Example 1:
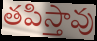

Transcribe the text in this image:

తపిస్తావు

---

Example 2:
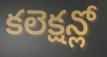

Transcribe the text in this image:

కలెక్షన్లో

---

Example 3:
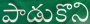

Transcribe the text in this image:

పాడుకొని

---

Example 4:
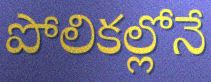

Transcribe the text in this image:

పోలికల్లోనే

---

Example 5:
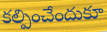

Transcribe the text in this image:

కల్పించేందుకూ